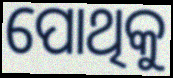
ପୋଥିକୁ